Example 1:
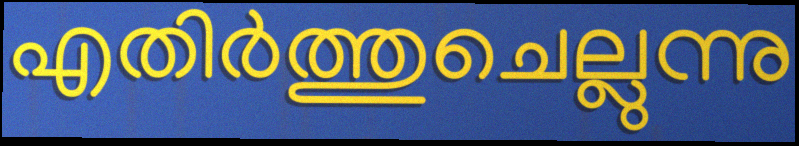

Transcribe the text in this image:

എതിർത്തുചെല്ലുന്നു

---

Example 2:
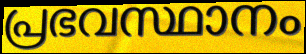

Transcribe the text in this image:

പ്രഭവസ്ഥാനം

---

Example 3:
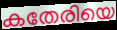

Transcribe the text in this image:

കതേരിയെ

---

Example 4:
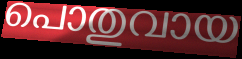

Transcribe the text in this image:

പൊതുവായ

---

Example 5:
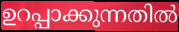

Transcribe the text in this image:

ഉറപ്പാക്കുന്നതിൽ